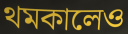
থমকালেও